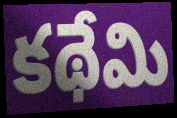
కథేమి